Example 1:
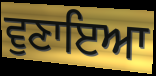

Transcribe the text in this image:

ਵੁਣਾਇਆ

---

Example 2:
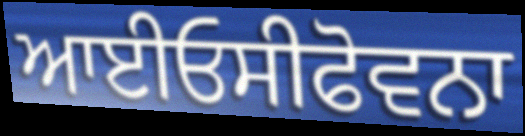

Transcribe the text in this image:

ਆਈਓਸੀਫੋਵਨਾ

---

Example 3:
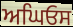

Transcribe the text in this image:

ਅਘਿਓਸ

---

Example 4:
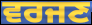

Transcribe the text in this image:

ਵਰਜਣ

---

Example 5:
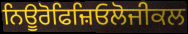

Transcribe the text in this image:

ਨਿਊਰੋਫਿਜ਼ਿਓਲੋਜੀਕਲ